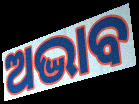
ଅଦ୍ଭାବ